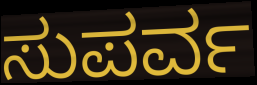
ಸುಪರ್ವ